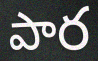
పార